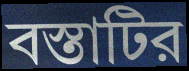
বস্তাটির